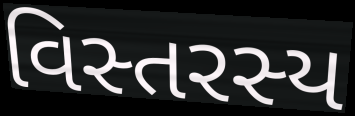
વિસ્તરસ્ય